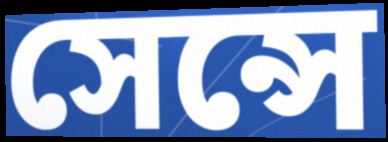
সেন্সে